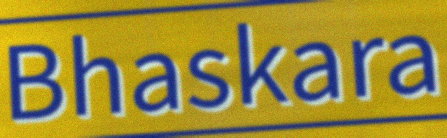
Bhaskara